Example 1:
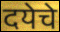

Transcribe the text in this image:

दयेचे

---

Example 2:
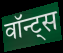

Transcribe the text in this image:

वॉन्ट्स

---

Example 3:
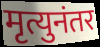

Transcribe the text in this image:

मृत्युनंतर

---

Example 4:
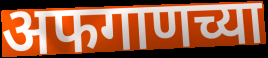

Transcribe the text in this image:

अफगाणच्या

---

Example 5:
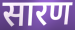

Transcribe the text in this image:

सारण